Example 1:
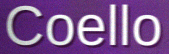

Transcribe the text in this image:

Coello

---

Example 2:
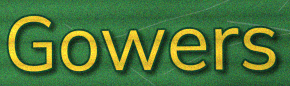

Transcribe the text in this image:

Gowers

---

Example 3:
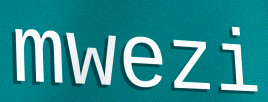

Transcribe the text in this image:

mwezi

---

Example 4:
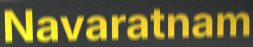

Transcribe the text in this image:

Navaratnam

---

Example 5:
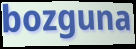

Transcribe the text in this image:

bozguna